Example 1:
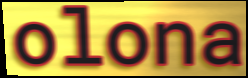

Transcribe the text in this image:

olona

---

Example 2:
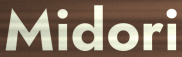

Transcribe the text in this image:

Midori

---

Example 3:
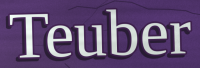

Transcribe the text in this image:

Teuber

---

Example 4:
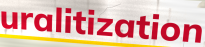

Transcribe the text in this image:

uralitization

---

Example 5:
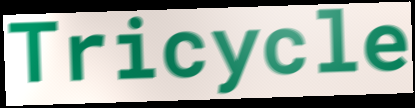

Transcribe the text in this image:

Tricycle